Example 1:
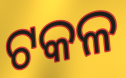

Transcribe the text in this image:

ଟକଳ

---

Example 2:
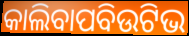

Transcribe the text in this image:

କାଲିବାପବିଉଟିଭ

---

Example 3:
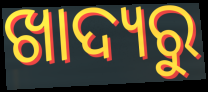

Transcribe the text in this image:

ଖାଦ୍ୟରୁ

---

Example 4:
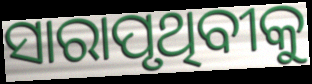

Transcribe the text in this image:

ସାରାପୃଥିବୀକୁ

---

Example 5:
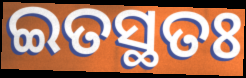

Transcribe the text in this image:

ଇତସ୍ଥତଃ